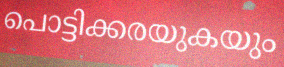
പൊട്ടിക്കരയുകയും